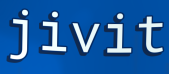
jivit